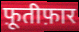
फ़ूतीफ़ार